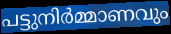
പട്ടുനിർമ്മാണവും